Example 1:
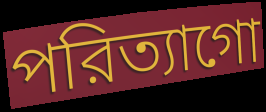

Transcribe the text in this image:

পরিত্যাগো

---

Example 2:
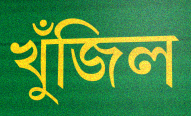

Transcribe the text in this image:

খুঁজিল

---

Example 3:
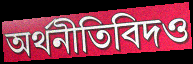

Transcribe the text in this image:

অর্থনীতিবিদও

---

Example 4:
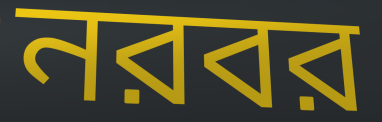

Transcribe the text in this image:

নরবর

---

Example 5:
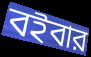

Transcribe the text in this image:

বইবার